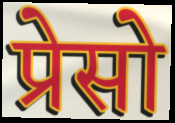
प्रेसो